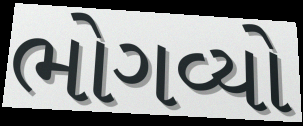
ભોગવ્યો